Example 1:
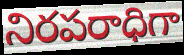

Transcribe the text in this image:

నిరపరాధిగా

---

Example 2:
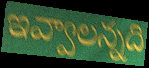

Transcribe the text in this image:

ఇవ్వాలన్నది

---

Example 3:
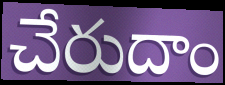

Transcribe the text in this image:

చేరుదాం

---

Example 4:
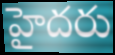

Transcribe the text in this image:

హైదరు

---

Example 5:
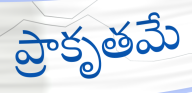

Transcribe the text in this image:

ప్రాకృతమే